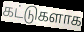
கட்டுகளாக